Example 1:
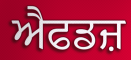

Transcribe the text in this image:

ਐਫਡਜ਼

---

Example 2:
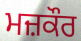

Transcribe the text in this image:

ਮਜ਼ਕੌਰ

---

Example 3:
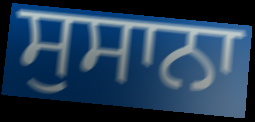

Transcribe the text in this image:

ਸੁਸਾਨਾ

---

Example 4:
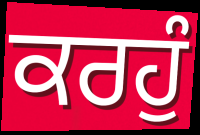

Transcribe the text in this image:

ਕਰਹੁੰ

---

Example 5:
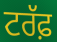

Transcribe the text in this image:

ਟਰੱਫ਼